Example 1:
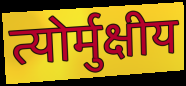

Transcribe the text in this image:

त्योर्मुक्षीय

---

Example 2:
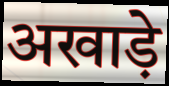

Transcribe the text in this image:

अखाड़े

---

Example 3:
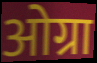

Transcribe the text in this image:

ओग्रा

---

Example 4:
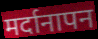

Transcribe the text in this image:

मर्दानापन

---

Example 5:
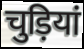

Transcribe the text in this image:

चुड़ियां